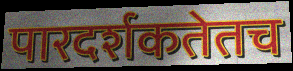
पारदर्शकतेतच